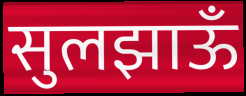
सुलझाऊँ